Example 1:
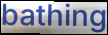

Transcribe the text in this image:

bathing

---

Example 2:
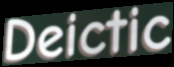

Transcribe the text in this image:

Deictic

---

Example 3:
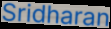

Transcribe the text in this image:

Sridharan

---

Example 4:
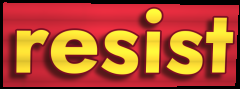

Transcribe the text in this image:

resist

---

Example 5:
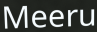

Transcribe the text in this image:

Meeru